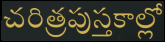
చరిత్రపుస్తకాల్లో